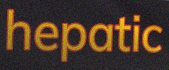
hepatic